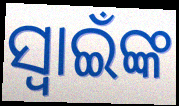
ସ୍ଵାଇଁଙ୍କ